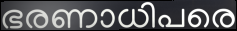
ഭരണാധിപരെ